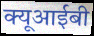
क्यूआईबी